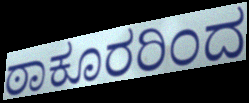
ಠಾಕೂರರಿಂದ